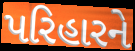
પરિહારને